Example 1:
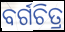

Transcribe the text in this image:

ବର୍ଗଚିତ୍ର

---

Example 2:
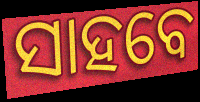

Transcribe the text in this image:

ସାହବେ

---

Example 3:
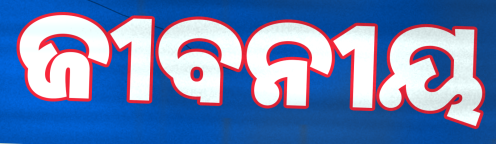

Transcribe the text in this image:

ଜୀବନୀୟ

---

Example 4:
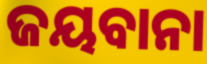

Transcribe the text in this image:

ଜୟବାନା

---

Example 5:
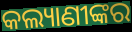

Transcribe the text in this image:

କଲ୍ୟାଣୀଙ୍କର